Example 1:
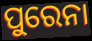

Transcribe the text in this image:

ପୁରେନା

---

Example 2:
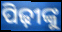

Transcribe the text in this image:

ପିଢ଼ୀଙ୍କୁ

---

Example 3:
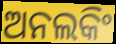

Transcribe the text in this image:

ଅନଲକିଂ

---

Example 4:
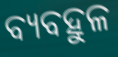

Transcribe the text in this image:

ବ୍ୟବହୁଳ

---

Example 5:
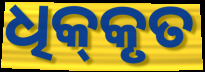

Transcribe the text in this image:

ଧିକ୍‌କୃତ